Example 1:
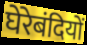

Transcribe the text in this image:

घेरेबंदियों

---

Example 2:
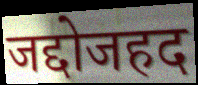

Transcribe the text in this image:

जद्दोजहद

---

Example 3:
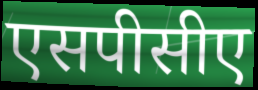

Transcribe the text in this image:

एसपीसीए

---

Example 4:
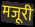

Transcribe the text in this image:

मजूरी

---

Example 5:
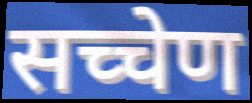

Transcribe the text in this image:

सच्चेण